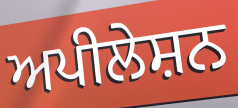
ਅਪੀਲੇਸ਼ਨ